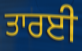
ਤਾਰਈ